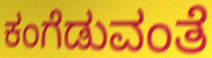
ಕಂಗೆಡುವಂತೆ